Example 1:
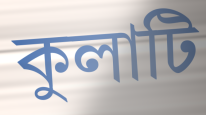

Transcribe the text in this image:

কুলাটি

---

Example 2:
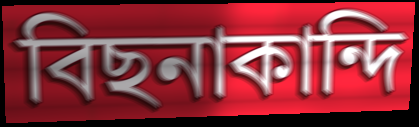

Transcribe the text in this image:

বিছনাকান্দি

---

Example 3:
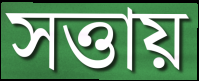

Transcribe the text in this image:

সত্তায়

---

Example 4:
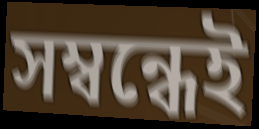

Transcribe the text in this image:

সম্বন্ধেই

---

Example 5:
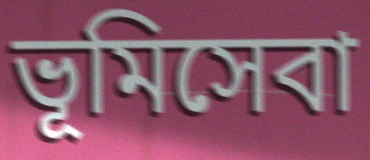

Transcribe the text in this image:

ভূমিসেবা